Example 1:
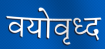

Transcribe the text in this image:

वयोवृध्द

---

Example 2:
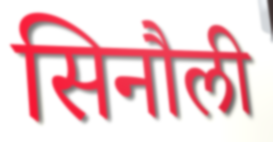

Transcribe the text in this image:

सिनौली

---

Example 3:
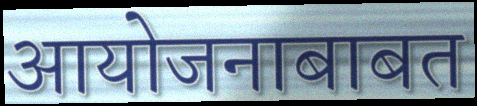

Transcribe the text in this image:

आयोजनाबाबत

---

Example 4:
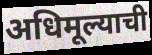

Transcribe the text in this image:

अधिमूल्याची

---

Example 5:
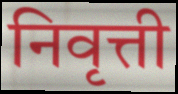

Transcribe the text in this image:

निवृत्ती